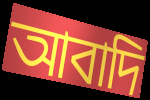
আবাদি